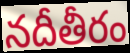
నదీతీరం